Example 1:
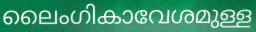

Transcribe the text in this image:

ലൈംഗികാവേശമുള്ള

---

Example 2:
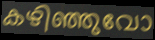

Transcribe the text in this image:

കഴിഞ്ഞുവോ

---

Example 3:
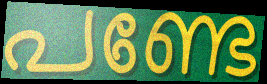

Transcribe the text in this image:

പണ്ടേ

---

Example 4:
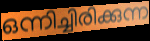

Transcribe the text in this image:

ഒന്നിച്ചിരിക്കുന്ന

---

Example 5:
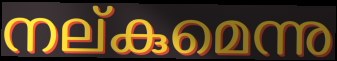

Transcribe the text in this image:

നല്‌കുമെന്നു